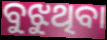
ବୁଝୁଥିବା